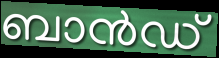
ബാൻഡ്